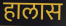
हालास